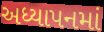
અધ્યાપનમાં